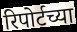
रिपोर्टच्या